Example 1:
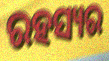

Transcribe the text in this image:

ରହସ୍ୟର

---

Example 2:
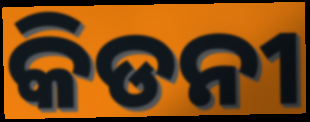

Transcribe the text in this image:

କିଡନୀ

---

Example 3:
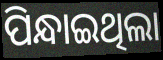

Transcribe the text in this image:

ପିନ୍ଧାଇଥିଲା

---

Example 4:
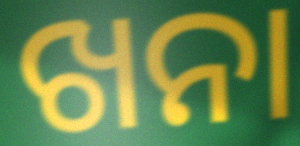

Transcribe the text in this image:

ଖନା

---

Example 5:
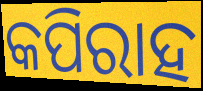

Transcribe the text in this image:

କପିରାହ